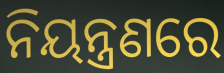
ନିୟନ୍ତ୍ରଣରେ